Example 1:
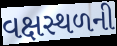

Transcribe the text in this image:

વક્ષસ્થળની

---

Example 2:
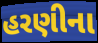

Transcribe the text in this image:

હરણીના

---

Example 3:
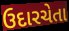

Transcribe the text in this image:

ઉદારચેતા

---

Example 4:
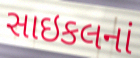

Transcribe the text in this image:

સાઇકલનાં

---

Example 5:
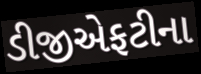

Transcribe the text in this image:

ડીજીએફટીના